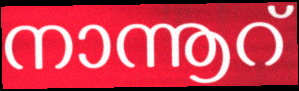
നാന്നൂറ്